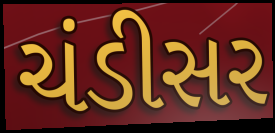
ચંડીસર